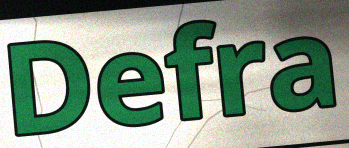
Defra